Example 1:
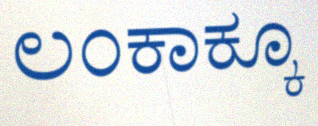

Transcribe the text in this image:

ಲಂಕಾಕ್ಕೂ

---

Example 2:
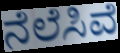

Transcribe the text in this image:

ನೆಲೆಸಿವೆ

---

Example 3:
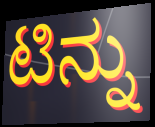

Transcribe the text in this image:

ಟಿನ್ನು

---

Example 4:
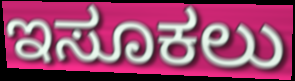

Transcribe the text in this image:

ಇಸೂಕಲು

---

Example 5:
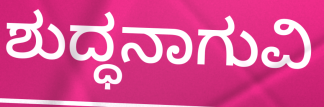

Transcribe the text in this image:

ಶುದ್ಧನಾಗುವಿ